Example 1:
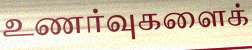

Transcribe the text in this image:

உணர்வுகளைக்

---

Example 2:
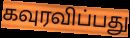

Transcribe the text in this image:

கவுரவிப்பது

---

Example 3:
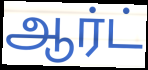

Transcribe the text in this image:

ஆர்ட்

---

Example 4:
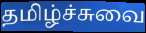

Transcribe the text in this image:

தமிழ்ச்சுவை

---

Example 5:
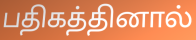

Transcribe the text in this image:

பதிகத்தினால்